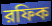
রফিক